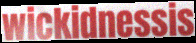
wickidnessis